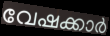
വേഷക്കാർ